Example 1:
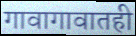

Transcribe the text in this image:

गावागावातही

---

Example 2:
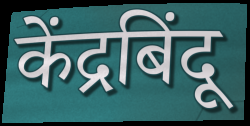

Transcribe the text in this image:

केंद्रबिंदू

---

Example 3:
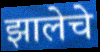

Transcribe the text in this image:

झालेचे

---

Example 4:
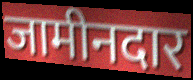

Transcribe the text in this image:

जामीनदार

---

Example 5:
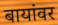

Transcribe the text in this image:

बायांवर